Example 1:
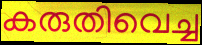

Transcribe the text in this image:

കരുതിവെച്ച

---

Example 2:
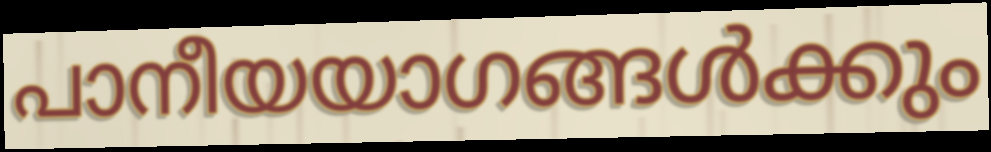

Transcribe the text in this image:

പാനീയയാഗങ്ങൾക്കും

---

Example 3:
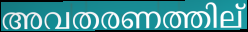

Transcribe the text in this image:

അവതരണത്തില്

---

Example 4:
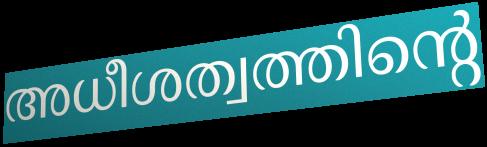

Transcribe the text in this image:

അധീശത്വത്തിന്റെ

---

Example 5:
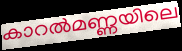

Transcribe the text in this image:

കാറൽമണ്ണയിലെ